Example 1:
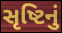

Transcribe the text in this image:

સૃષ્ટિનું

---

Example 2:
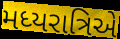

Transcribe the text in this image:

મધ્યરાત્રિએ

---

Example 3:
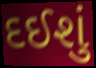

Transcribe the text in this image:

દઈશું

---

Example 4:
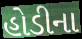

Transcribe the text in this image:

હોડીના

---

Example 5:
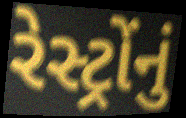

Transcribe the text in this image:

રેસ્ટ્રોંનું